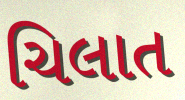
ચિલાત